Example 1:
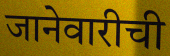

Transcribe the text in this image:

जानेवारीची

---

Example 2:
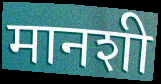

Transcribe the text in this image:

मानशी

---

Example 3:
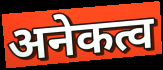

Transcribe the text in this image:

अनेकत्व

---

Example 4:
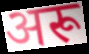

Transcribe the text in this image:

अरू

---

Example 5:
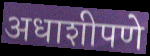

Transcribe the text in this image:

अधाशीपणे